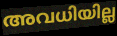
അവധിയില്ല